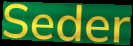
Seder